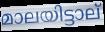
മാലയിട്ടാല്